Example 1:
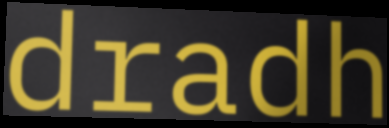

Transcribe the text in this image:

dradh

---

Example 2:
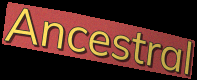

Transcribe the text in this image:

Ancestral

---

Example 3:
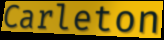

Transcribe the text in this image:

Carleton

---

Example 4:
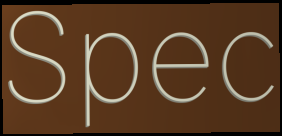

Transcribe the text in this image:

Spec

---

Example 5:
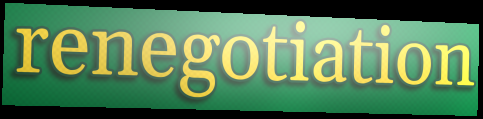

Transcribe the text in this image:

renegotiation